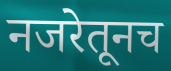
नजरेतूनच